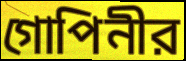
গোপিনীর